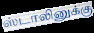
ஸ்டாலினுக்கு